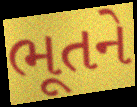
ભૂતને